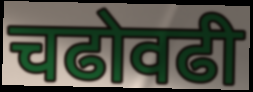
चढोवढी